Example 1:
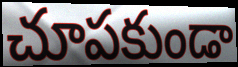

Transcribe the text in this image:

చూపకుండా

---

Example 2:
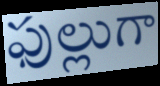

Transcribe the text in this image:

ఫుల్లుగా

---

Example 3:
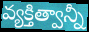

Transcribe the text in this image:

వ్యక్తిత్వాన్నీ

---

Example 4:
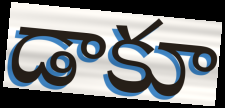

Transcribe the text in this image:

డాకూ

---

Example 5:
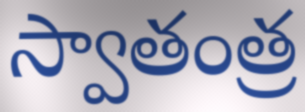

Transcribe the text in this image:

స్వాతంత్ర